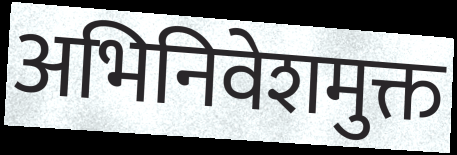
अभिनिवेशमुक्त